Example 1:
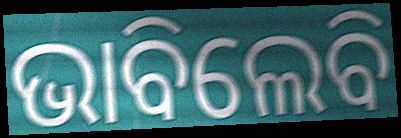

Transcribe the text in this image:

ଭାବିଲେବି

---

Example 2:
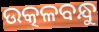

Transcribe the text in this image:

ଉତ୍କଳବନ୍ଧୁ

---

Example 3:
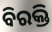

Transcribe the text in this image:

ବିରକ୍ତି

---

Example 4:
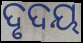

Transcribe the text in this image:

ଦୃଦୟ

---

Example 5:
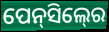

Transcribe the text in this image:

ପେନ୍‍ସିଲ୍‍ରେ